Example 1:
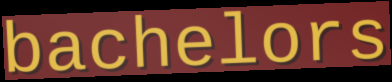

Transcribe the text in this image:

bachelors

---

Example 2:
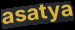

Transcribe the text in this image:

asatya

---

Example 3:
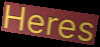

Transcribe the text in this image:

Heres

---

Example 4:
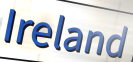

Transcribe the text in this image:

Ireland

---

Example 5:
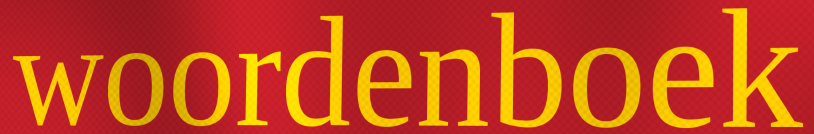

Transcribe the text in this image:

woordenboek